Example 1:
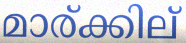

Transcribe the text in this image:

മാര്ക്കില്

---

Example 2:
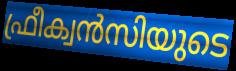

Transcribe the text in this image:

ഫ്രീക്വൻസിയുടെ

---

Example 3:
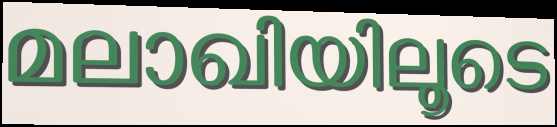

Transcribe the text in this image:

മലാഖിയിലൂടെ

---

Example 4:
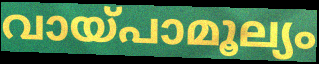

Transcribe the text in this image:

വായ്പാമൂല്യം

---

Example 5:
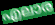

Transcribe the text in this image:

എലാര